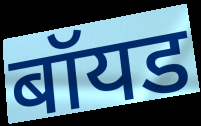
बॉयड